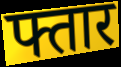
फ्तार